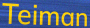
Teiman